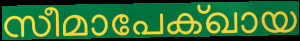
സീമാപേക്ഖായ